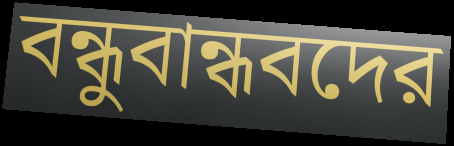
বন্ধুবান্ধবদের